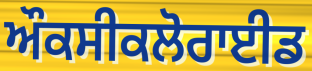
ਔਕਸੀਕਲੋਰਾਈਡ